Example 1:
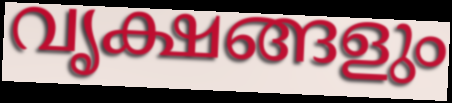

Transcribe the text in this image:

വൃക്ഷങ്ങളും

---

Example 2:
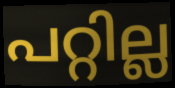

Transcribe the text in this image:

പറ്റില്ല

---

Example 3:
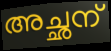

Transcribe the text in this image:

അച്ഛന്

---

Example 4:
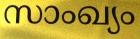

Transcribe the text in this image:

സാംഖ്യം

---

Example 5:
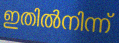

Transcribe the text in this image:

ഇതിൽനിന്ന്